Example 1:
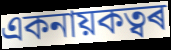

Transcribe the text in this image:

একনায়কত্বৰ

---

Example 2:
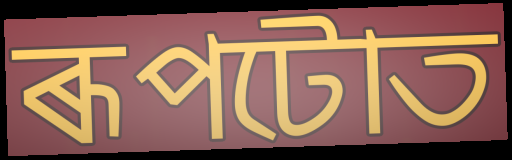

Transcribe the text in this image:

ৰূপটোত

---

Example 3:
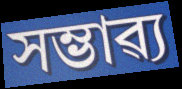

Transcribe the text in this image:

সম্ভাৱ্য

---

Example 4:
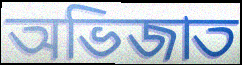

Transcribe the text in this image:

অভিজাত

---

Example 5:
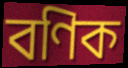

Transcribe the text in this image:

বণিক